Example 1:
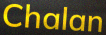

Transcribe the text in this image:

Chalan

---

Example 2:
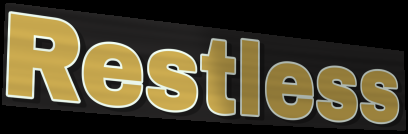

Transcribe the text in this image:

Restless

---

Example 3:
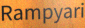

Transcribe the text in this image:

Rampyari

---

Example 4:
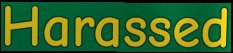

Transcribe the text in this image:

Harassed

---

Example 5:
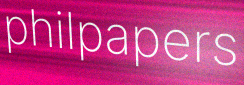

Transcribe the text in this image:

philpapers